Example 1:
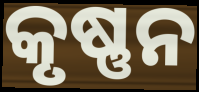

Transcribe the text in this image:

କୃଷ୍ଣନ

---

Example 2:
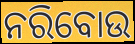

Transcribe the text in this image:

ନରିବୋଉ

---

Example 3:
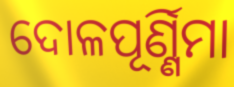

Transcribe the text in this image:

ଦୋଳପୂର୍ଣ୍ଣିମା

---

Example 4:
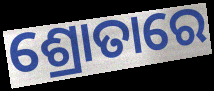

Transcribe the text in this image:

ଶ୍ରୋତାରେ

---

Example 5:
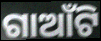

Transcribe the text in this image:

ଗାଆଁଟି